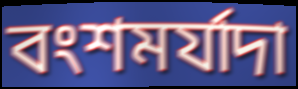
বংশমর্যাদা